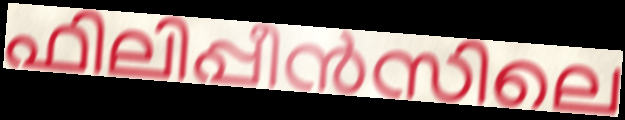
ഫിലിപ്പീൻസിലെ